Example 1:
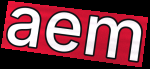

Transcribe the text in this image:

aem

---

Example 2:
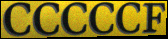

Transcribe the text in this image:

CCCCCF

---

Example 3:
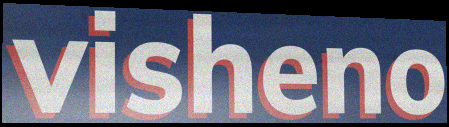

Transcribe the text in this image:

visheno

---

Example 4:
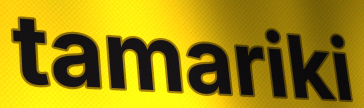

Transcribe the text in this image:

tamariki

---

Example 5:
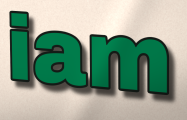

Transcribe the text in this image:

iam